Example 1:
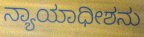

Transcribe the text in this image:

ನ್ಯಾಯಾಧೀಶನು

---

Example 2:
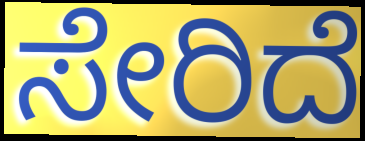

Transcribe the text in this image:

ಸೇರಿದೆ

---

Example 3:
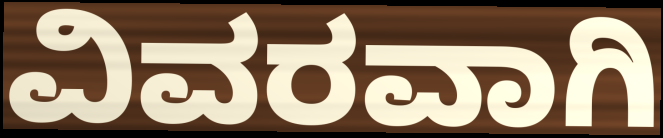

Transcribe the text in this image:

ವಿವರವಾಗಿ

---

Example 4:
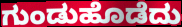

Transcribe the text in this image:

ಗುಂಡುಹೊಡೆದು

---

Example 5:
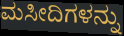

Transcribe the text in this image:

ಮಸೀದಿಗಳನ್ನು